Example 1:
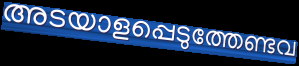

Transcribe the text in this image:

അടയാളപ്പെടുത്തേണ്ടവ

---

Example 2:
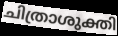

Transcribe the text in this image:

ചിത്രാശുക്തി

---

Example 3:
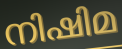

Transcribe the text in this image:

നിഷിമ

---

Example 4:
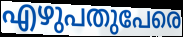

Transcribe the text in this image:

എഴുപതുപേരെ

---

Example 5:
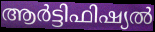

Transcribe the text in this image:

ആർട്ടിഫിഷ്യൽ